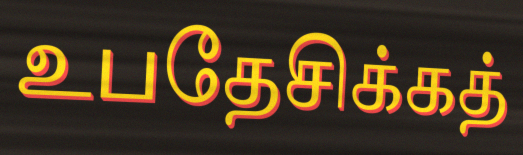
உபதேசிக்கத்